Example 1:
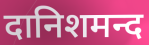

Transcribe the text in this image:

दानिशमन्द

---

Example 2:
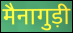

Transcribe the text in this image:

मैनागुड़ी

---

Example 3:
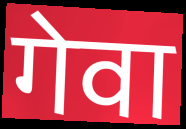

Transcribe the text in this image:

गेवा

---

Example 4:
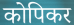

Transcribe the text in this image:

कोपिकर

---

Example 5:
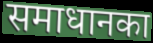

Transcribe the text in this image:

समाधानका